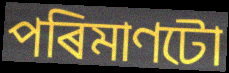
পৰিমাণটো